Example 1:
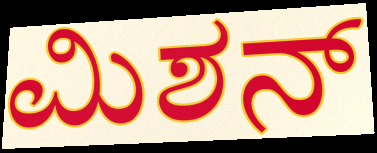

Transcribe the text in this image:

ಮಿಶನ್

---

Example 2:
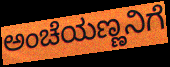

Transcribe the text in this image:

ಅಂಚೆಯಣ್ಣನಿಗೆ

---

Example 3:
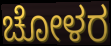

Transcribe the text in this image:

ಚೋಳರ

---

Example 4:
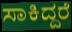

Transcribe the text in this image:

ಸಾಕಿದ್ದರೆ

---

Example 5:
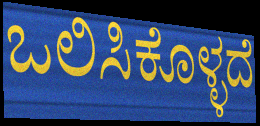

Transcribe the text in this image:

ಒಲಿಸಿಕೊಳ್ಳದೆ